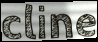
cline